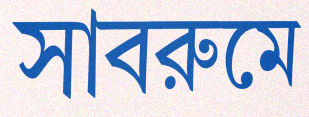
সাবরুমে